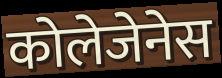
कोलेजेनेस